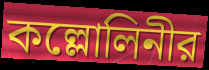
কল্লোলিনীর